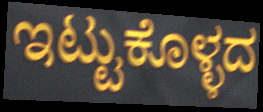
ಇಟ್ಟುಕೊಳ್ಳದ